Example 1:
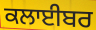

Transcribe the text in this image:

ਕਲਾਈਬਰ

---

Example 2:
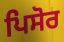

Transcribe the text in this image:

ਪਿਸੋਰ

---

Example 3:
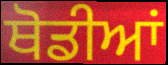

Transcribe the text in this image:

ਥੋਡੀਆਂ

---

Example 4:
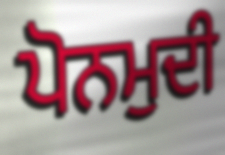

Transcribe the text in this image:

ਪੋਨਮੁਦੀ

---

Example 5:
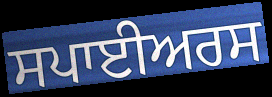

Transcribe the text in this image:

ਸਪਾਈਅਰਸ